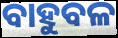
ବାହୁବଳ